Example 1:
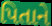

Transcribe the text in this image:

પિતાને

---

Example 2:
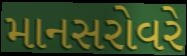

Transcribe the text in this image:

માનસરોવરે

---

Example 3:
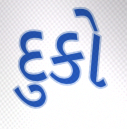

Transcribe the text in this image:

દુકો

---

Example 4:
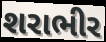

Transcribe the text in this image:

શરાભીર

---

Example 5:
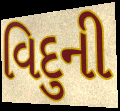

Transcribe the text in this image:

વિદુની